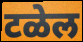
टळेल